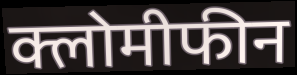
क्लोमीफीन